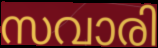
സവാരി